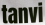
tanvi